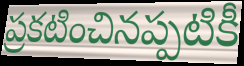
ప్రకటించినప్పటికీ